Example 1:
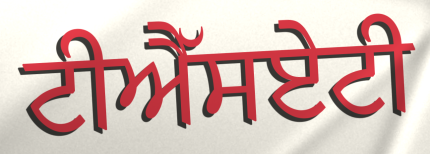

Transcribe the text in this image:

ਟੀਐੱਸਏਟੀ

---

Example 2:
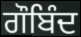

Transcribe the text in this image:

ਗੌਬਿੰਦ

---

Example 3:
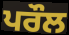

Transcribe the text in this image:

ਪਰੌਲ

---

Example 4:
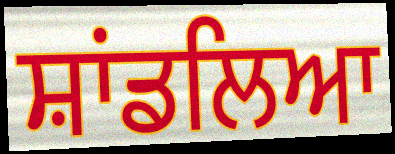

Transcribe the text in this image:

ਸ਼ਾਂਡਲਿਆ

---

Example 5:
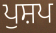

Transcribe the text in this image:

ਪੁਸ਼ਪ